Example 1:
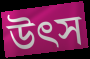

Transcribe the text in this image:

উত্‍স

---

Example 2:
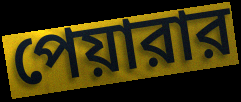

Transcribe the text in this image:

পেয়ারার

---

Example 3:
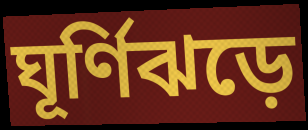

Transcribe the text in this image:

ঘূর্ণিঝড়ে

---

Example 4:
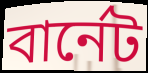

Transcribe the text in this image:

বার্নেট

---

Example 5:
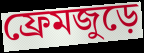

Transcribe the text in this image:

ফ্রেমজুড়ে